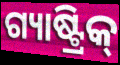
ଗ୍ୟାଷ୍ଟ୍ରିକ୍